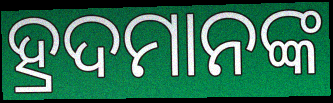
ହ୍ରଦମାନଙ୍କ